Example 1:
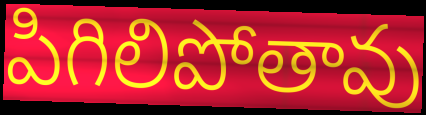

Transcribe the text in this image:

పిగిలిపోతావు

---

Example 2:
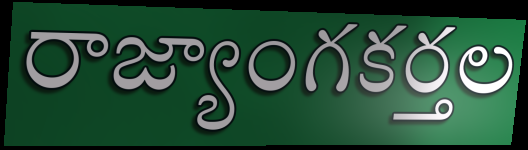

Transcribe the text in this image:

రాజ్యాంగకర్తల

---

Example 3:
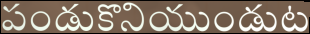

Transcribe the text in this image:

పండుకొనియుండుట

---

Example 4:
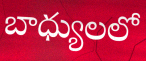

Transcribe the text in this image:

బాధ్యులలో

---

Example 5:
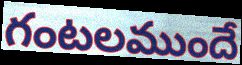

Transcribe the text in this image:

గంటలముందే